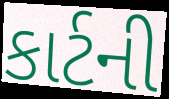
કાર્ટની